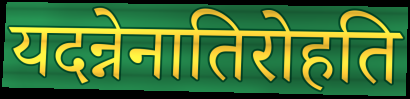
यदन्नेनातिरोहति